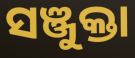
ସଞ୍ଜୁକ୍ତା